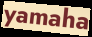
yamaha